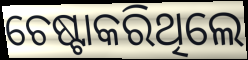
ଚେଷ୍ଟାକରିଥିଲେ